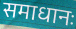
समाधानः